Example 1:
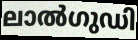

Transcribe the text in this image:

ലാൽഗുഡി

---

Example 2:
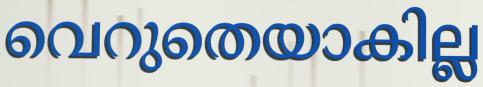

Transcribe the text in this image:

വെറുതെയാകില്ല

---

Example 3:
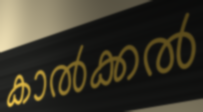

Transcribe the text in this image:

കാൽക്കൽ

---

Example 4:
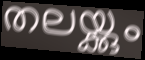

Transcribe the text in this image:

തലയ്ക്കും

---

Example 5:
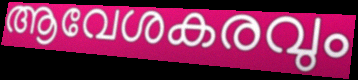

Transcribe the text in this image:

ആവേശകരവും